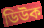
ডিউক